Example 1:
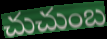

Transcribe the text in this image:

చుచుంబ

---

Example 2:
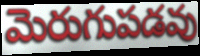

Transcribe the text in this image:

మెరుగుపడవు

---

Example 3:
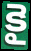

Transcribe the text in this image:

కై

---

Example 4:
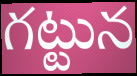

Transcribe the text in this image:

గట్టున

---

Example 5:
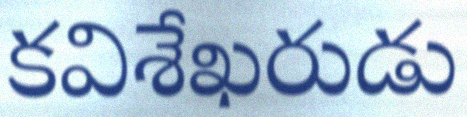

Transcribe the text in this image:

కవిశేఖరుడు